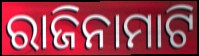
ରାଜିନାମାଟି